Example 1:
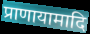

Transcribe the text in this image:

प्राणायामादि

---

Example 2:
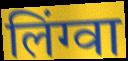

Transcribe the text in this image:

लिंग्वा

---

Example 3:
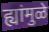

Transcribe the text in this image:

ह्यांमुळे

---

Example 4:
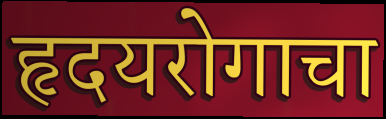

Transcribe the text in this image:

हृदयरोगाचा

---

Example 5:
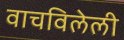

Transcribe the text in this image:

वाचविलेली